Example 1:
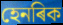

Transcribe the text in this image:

হেনৰিক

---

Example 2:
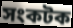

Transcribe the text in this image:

সংকটক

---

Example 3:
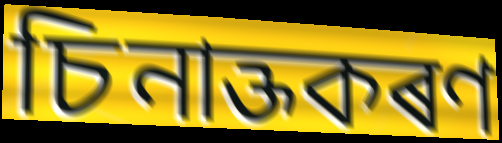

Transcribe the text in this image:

চিনাক্তকৰণ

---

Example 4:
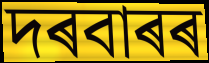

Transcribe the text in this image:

দৰবাৰৰ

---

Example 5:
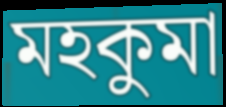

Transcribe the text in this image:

মহকুমা